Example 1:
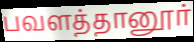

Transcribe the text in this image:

பவளத்தானூர்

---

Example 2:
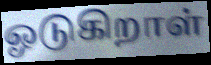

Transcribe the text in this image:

ஓடுகிறாள்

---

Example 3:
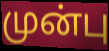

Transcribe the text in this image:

முன்பு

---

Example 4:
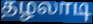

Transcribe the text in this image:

தழலாடி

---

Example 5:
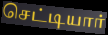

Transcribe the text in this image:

செட்டியார்